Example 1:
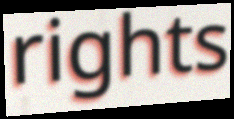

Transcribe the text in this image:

rights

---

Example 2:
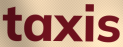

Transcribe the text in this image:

taxis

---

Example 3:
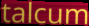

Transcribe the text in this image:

talcum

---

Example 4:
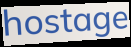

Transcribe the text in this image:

hostage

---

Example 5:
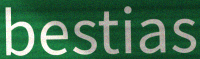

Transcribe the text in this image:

bestias